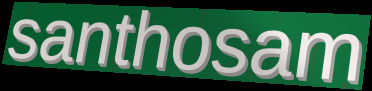
santhosam